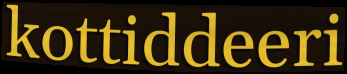
kottiddeeri